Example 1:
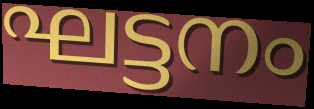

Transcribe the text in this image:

ഘട്ടനം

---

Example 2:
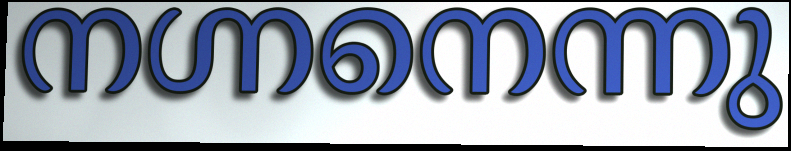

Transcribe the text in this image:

നഗ്നനെന്നു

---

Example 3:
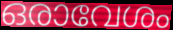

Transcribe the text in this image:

ഒരാവേശം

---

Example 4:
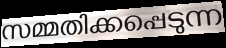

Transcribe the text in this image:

സമ്മതിക്കപ്പെടുന്ന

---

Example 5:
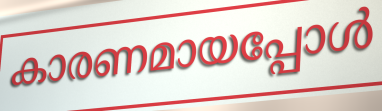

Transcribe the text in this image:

കാരണമായപ്പോൾ